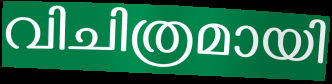
വിചിത്രമായി